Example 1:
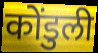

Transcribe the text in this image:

कोंडुली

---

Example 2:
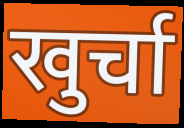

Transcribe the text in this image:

खुर्चा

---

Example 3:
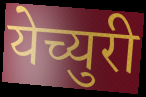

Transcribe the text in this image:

येच्युरी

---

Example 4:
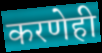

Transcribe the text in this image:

करणेही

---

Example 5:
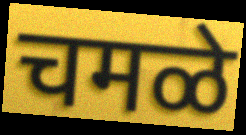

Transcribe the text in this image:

चमळे